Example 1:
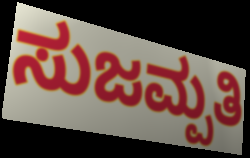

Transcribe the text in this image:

ಸುಜಮ್ಪತಿ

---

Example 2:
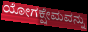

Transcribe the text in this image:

ಯೋಗಕ್ಷೇಮವನ್ನು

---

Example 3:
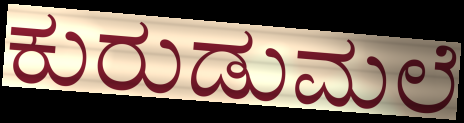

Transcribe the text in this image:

ಕುರುಡುಮಲೆ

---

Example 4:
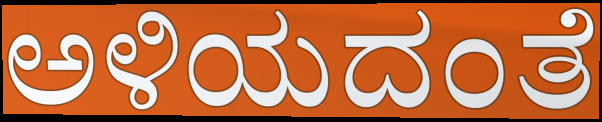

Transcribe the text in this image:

ಅಳಿಯದಂತೆ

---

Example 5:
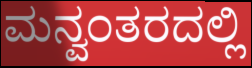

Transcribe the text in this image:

ಮನ್ವಂತರದಲ್ಲಿ